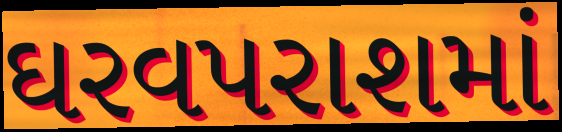
ઘરવપરાશમાં